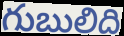
గుబులిది